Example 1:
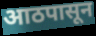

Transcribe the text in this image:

आठपासून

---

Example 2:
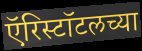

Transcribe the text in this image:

ऍरिस्टॉटलच्या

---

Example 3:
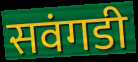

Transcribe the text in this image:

सवंगडी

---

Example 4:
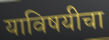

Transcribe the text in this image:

याविषयीचा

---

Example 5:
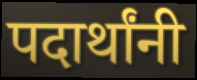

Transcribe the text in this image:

पदार्थांनी